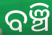
ବଞ୍ଚି